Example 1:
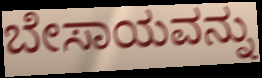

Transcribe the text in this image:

ಬೇಸಾಯವನ್ನು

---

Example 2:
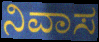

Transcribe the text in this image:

ನಿವಾಸ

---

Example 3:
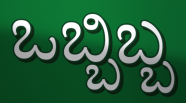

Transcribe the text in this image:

ಒಬ್ಬಿಬ್ಬ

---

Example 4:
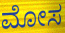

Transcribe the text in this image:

ಮೋಸ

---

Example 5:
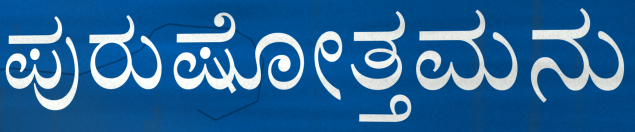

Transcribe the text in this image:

ಪುರುಷೋತ್ತಮನು